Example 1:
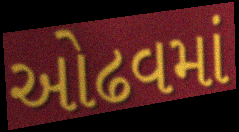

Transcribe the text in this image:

ઓઢવમાં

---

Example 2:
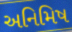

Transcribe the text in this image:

અનિમિષ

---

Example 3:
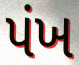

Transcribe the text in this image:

પંખ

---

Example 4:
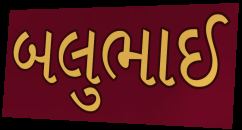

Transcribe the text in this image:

બલુભાઈ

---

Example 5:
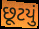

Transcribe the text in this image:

છૂટયું